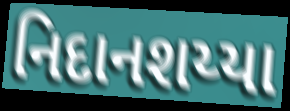
નિદાનશય્યા